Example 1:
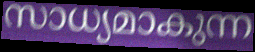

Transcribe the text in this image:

സാധ്യമാകുന്ന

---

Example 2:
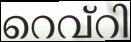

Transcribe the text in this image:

റെവ്റി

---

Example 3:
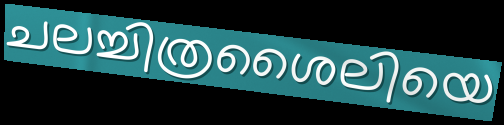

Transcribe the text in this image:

ചലച്ചിത്രശൈലിയെ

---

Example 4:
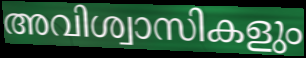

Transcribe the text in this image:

അവിശ്വാസികളും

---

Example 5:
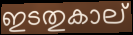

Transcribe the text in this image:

ഇടതുകാല്